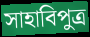
সাহাবিপুত্র